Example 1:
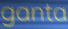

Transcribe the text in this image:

ganta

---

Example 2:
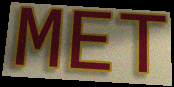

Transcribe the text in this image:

MET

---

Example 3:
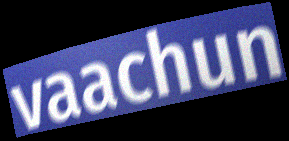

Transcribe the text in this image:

vaachun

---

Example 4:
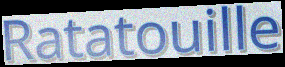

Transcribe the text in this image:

Ratatouille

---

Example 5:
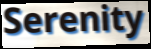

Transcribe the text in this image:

Serenity